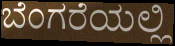
ಬೆಂಗರೆಯಲ್ಲಿ